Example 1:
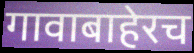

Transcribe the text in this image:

गावाबाहेरच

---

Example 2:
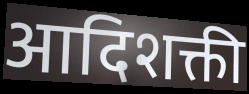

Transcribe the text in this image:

आदिशक्ती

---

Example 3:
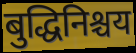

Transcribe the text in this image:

बुद्धिनिश्चय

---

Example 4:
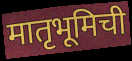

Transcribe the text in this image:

मातृभूमिची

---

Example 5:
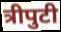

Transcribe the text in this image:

त्रीपुटी